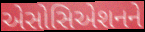
એસોસિએશનને